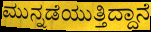
ಮುನ್ನಡೆಯುತ್ತಿದ್ದಾನೆ